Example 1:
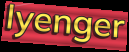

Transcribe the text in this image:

Iyenger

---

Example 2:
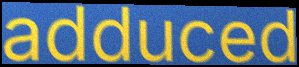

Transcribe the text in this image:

adduced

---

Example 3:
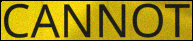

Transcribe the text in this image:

CANNOT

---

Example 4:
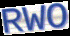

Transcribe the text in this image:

RWO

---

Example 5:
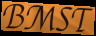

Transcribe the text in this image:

BMST